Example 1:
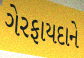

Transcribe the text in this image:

ગેરફાયદાને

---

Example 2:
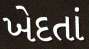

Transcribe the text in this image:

ખેદતાં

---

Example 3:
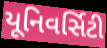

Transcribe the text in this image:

યૂનિવર્સિટી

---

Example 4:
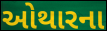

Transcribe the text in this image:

ઓથારના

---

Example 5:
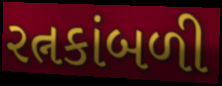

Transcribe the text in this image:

રત્નકાંબળી